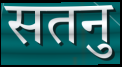
सतनु